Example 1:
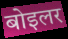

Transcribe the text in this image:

बोइलर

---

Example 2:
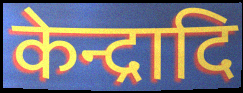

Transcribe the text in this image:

केन्द्रादि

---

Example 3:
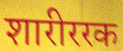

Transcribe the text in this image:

शारीररक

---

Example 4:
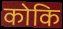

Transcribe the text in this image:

कोकि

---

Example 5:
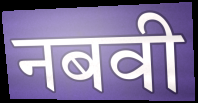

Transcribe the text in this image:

नबवी